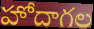
హోదాగల